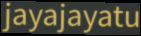
jayajayatu